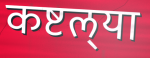
कष्टल्या